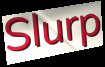
Slurp